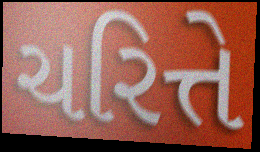
ચરિત્તે